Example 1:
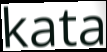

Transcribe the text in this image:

kata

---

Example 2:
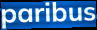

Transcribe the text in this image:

paribus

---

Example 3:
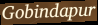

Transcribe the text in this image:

Gobindapur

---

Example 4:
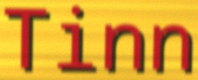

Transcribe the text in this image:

Tinn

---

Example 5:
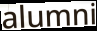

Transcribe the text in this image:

alumni